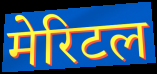
मेरिटल